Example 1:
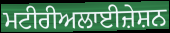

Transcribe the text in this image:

ਮਟੀਰੀਅਲਾਈਜ਼ੇਸ਼ਨ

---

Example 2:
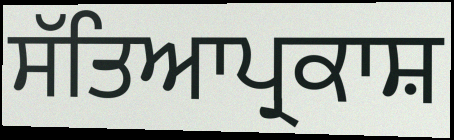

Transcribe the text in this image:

ਸੱਤਿਆਪ੍ਰਕਾਸ਼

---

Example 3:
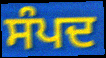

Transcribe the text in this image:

ਸੰਪਦ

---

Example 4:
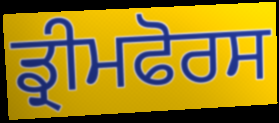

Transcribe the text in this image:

ਡ੍ਰੀਮਫੋਰਸ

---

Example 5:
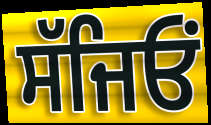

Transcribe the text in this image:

ਸੱਜਿਓਂ